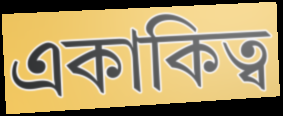
একাকিত্ব